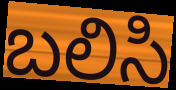
బలిసి